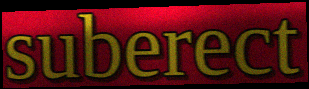
suberect